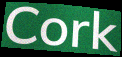
Cork